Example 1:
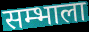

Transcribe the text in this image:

सम्भाला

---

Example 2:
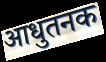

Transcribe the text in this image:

आधुतनक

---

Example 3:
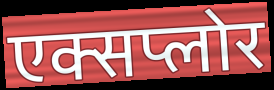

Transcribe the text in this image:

एक्सप्लोर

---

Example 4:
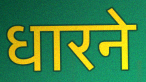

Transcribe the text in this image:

धारने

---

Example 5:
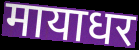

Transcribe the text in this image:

मायाधर